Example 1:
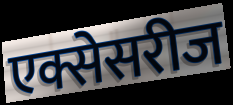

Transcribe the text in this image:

एक्सेसरीज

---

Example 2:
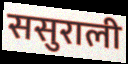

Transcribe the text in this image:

ससुराली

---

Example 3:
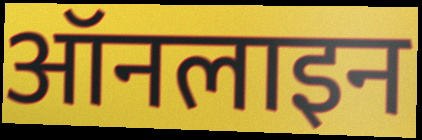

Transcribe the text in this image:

ऑनलाइन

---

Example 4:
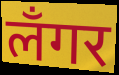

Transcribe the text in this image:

लँगर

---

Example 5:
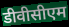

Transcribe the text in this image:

डीवीसीएम